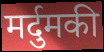
मर्दुमकी